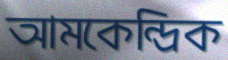
আমকেন্দ্রিক